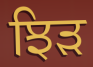
ਝਿੜ